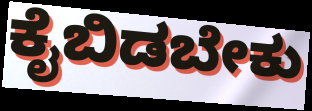
ಕೈಬಿಡಬೇಕು